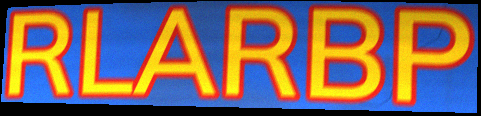
RLARBP